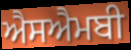
ਐਸਐਮਬੀ